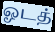
ஓடத்